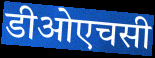
डीओएचसी